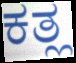
ಕತ್ಲ